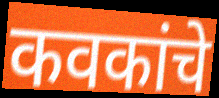
कवकांचे